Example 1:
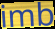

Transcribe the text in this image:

imb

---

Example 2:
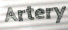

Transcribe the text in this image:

Artery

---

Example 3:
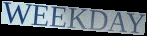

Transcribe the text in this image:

WEEKDAY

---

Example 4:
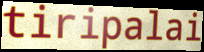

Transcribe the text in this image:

tiripalai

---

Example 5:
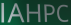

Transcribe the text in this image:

IAHPC